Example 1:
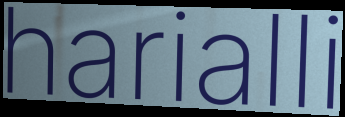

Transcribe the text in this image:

harialli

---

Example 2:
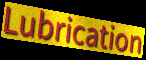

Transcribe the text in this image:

Lubrication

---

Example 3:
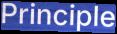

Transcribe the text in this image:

Principle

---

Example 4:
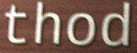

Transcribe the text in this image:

thod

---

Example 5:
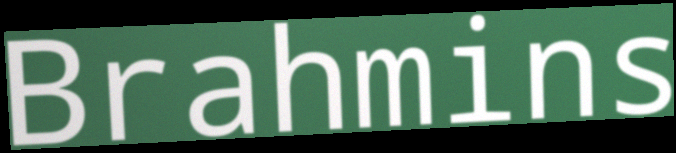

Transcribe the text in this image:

Brahmins